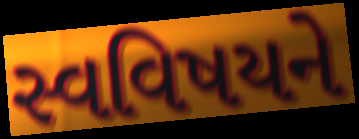
સ્વવિષયને